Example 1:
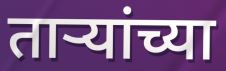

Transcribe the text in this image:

तार्‍यांच्या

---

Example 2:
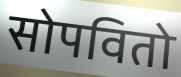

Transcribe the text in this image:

सोपवितो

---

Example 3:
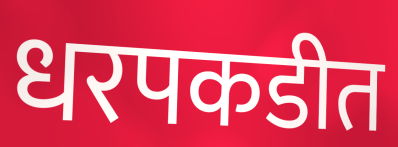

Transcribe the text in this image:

धरपकडीत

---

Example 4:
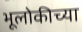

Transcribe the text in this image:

भूलोकीच्या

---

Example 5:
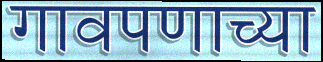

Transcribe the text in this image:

गावपणाच्या